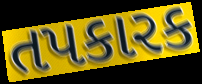
તપકારક